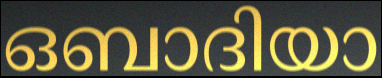
ഒബാദിയാ